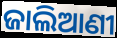
ଜାଲିଆଣୀ